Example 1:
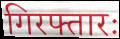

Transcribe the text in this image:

गिरफ्तारः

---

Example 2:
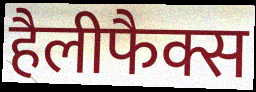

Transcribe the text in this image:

हैलीफैक्स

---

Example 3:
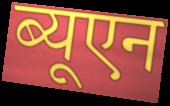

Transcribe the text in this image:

ब्यूएन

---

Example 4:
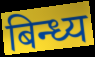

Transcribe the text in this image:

बिन्ध्य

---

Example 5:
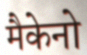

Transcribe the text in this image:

मैकेनो